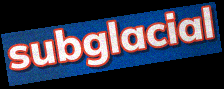
subglacial